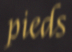
pieds